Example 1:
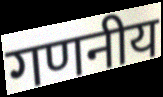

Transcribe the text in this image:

गणनीय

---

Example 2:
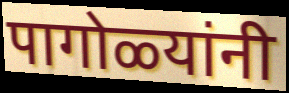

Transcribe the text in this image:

पागोळ्यांनी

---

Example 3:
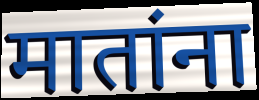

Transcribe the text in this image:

मातांना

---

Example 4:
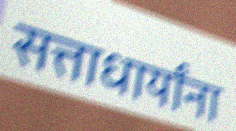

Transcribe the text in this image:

सत्ताधार्यांना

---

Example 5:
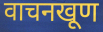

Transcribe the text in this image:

वाचनखूण